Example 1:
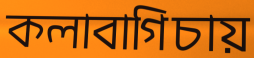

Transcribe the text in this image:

কলাবাগিচায়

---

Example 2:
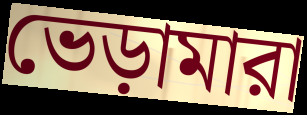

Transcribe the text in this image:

ভেড়ামারা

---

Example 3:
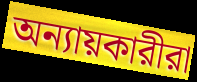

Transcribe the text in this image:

অন্যায়কারীরা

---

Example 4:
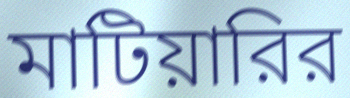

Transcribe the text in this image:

মাটিয়ারির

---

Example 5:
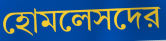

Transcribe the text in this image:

হোমলেসদের